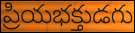
ప్రియభక్తుడగు